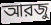
আরজু